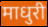
माधुरी